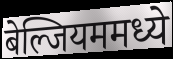
बेल्जियममध्ये